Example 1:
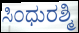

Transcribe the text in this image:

ಸಿಂಧುರಶ್ಮಿ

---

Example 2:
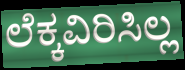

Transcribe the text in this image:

ಲೆಕ್ಕವಿರಿಸಿಲ್ಲ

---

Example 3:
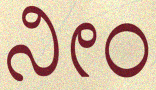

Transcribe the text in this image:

ನೀಂ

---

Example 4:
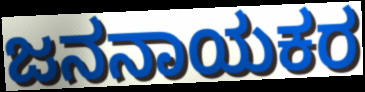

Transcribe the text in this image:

ಜನನಾಯಕರ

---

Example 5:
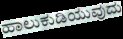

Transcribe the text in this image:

ಹಾಲುಕುಡಿಯುವುದು